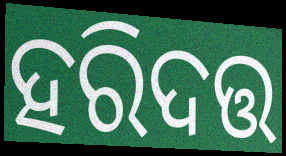
ହରିଦତ୍ତ